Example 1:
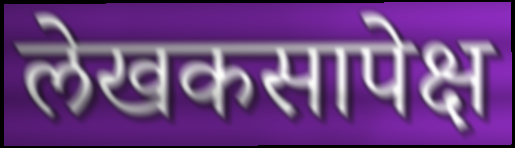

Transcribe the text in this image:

लेखकसापेक्ष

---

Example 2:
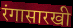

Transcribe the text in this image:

रंगासारखी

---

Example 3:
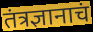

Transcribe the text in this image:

तंत्रज्ञानाचं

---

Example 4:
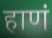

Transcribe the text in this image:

हाणं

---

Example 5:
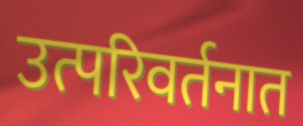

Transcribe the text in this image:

उत्परिवर्तनात